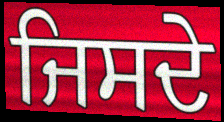
ਜਿਸਦੇ